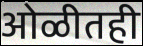
ओळीतही